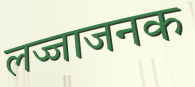
लज्जाजनक